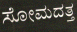
ಸೋಮದತ್ತ